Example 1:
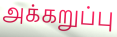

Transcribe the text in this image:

அக்கறுப்பு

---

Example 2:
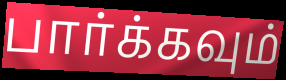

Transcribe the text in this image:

பார்க்கவும்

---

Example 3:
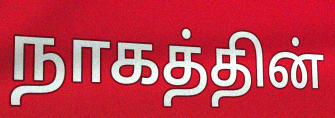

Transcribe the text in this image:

நாகத்தின்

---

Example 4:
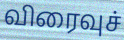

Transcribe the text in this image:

விரைவுச்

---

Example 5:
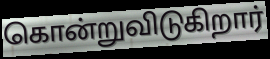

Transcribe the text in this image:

கொன்றுவிடுகிறார்